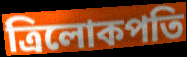
ত্রিলোকপতি